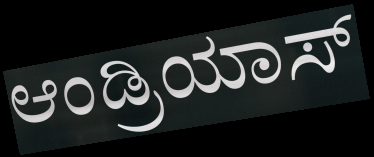
ಆಂಡ್ರಿಯಾಸ್